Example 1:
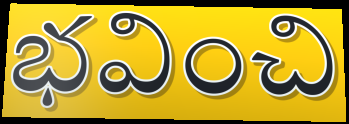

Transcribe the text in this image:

భవించి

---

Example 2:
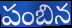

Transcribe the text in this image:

పంబిన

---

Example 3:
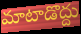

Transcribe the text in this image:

మాటాడొద్దు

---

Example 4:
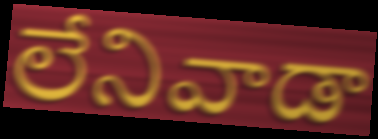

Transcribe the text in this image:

లేనివాడా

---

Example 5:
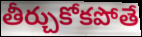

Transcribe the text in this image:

తీర్చుకోకపోతే